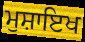
ਮੁਸ਼ਾਇਖ